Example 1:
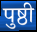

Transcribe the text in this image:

पुष्ठी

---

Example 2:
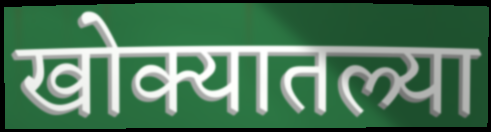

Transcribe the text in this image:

खोक्यातल्या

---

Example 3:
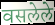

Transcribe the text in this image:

वसलेले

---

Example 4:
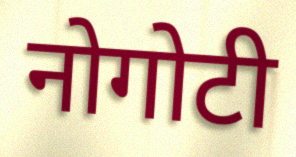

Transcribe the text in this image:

नोगोटी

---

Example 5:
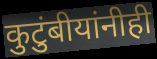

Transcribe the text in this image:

कुटुंबीयांनीही